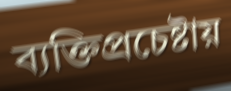
ব্যক্তিপ্রচেষ্টায়